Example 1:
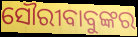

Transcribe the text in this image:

ସୌରୀବାବୁଙ୍କର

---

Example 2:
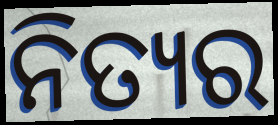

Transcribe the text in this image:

ନିତ୍ୟର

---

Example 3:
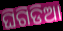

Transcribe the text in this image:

ଘିଗିଡିଆ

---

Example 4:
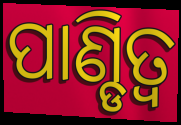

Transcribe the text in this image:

ପାଣ୍ଡିତ୍ୱ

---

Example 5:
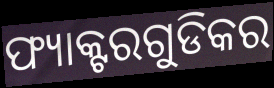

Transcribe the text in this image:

ଫ୍ୟାକ୍ଟରଗୁଡିକର